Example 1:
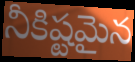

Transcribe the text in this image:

నీకిష్టమైన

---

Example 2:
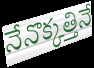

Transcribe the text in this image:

నేనొక్కత్తినే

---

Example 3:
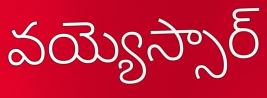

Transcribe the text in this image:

వయ్యెస్సార్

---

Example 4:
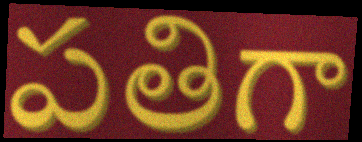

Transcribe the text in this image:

పతిగా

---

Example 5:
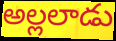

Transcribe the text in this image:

అల్లలాడు